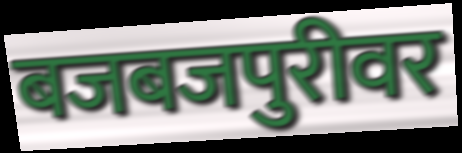
बजबजपुरीवर